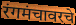
रंगमंचावरचे